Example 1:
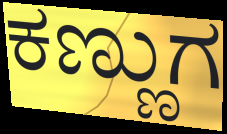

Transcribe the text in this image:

ಕಣ್ಣುಗ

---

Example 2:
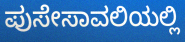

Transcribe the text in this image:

ಪುಸೇಸಾವಲಿಯಲ್ಲಿ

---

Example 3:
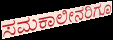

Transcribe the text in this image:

ಸಮಕಾಲೀನರಿಗೂ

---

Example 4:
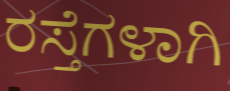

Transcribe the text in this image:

ರಸ್ತೆಗಳಾಗಿ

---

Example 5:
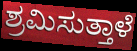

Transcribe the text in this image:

ಶ್ರಮಿಸುತ್ತಾಳೆ